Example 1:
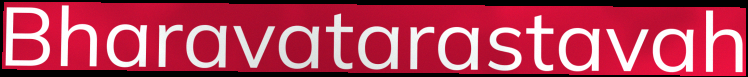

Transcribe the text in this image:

Bharavatarastavah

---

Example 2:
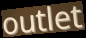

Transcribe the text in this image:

outlet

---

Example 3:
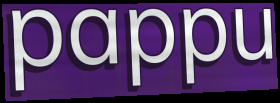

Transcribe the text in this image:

pappu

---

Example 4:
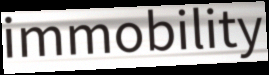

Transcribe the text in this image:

immobility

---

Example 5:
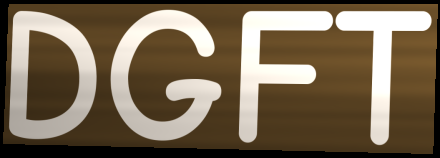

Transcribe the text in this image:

DGFT